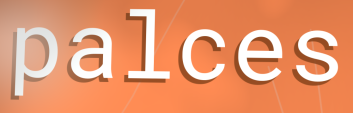
palces